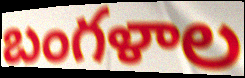
బంగళాల